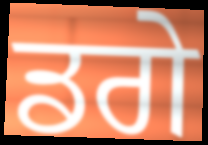
ਡਗੇ